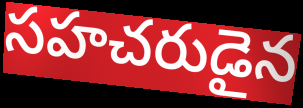
సహచరుడైన